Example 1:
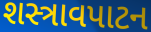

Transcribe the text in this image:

શસ્ત્રાવપાટન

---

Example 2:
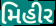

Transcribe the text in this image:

મિહીર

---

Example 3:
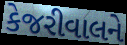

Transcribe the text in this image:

કેજરીવાલને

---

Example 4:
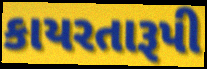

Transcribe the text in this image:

કાયરતારૂપી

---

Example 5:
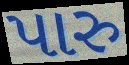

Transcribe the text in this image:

પારુ